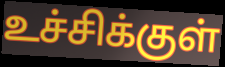
உச்சிக்குள்